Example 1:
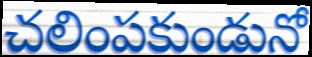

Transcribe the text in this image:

చలింపకుండునో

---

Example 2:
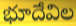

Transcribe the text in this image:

భూదేవిల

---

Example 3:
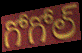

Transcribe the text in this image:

గోగోల్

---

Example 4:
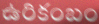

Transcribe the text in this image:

ఉరికంబం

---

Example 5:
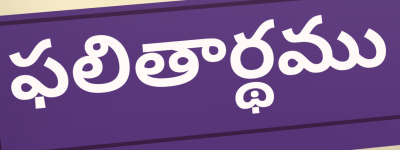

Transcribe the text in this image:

ఫలితార్థము